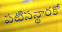
పటిసన్థారకో